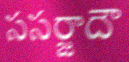
ససర్జాదౌ